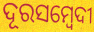
ଦୂରସମ୍ବେଦୀ